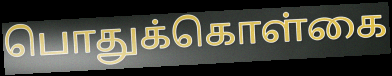
பொதுக்கொள்கை